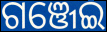
ଗଞ୍ଜେଇ